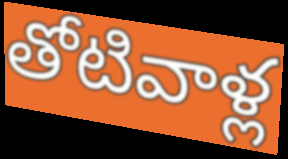
తోటివాళ్ల